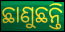
ଛାଣୁଛନ୍ତି